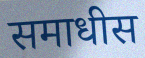
समाधीस